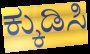
ಕ್ಕುಡಿಸಿ